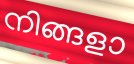
നിങ്ങളാ